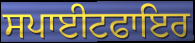
ਸਪਾਈਟਫਾਇਰ